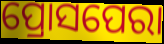
ପ୍ରୋସପେରା